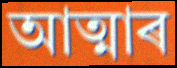
আত্মাৰ